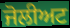
ਜੋਲੀਅਟ